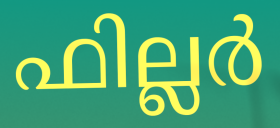
ഫില്ലർ